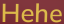
Hehe